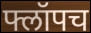
फ्लॉपच